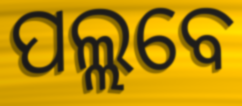
ପଲ୍ଲବେ